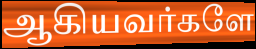
ஆகியவர்களே